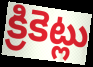
క్రికెట్లు